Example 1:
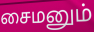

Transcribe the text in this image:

சைமனும்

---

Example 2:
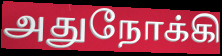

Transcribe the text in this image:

அதுநோக்கி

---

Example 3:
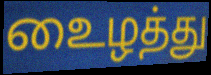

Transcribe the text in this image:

உைழத்து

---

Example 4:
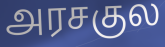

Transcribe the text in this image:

அரசகுல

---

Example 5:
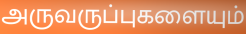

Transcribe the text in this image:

அருவருப்புகளையும்